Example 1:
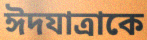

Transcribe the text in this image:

ঈদযাত্রাকে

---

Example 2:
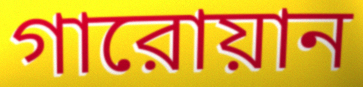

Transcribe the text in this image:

গারোয়ান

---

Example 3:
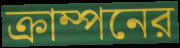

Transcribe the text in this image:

ক্রাম্পনের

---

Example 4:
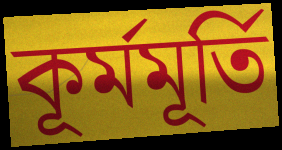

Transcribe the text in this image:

কূর্মমূর্তি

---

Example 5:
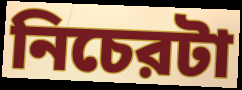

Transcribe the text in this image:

নিচেরটা